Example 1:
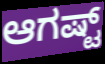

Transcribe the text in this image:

ಆಗಷ್ಟ್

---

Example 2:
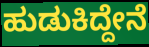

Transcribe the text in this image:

ಹುಡುಕಿದ್ದೇನೆ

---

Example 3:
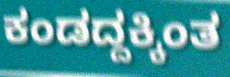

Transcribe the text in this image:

ಕಂಡದ್ದಕ್ಕಿಂತ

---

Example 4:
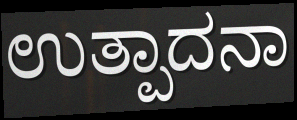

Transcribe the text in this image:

ಉತ್ಪಾದನಾ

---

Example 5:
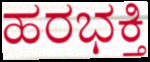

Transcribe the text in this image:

ಹರಭಕ್ತಿ